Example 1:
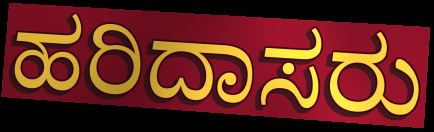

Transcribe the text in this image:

ಹರಿದಾಸರು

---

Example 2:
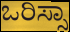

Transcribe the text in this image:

ಒರಿಸ್ಸಾ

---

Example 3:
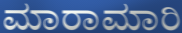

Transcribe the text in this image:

ಮಾರಾಮಾರಿ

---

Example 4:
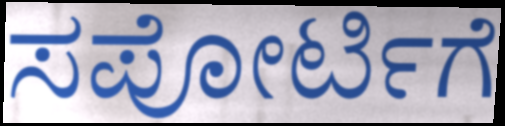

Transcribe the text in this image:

ಸಪೋರ್ಟಿಗೆ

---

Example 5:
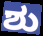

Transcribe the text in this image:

ಶು